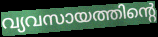
വ്യവസായത്തിന്റെ